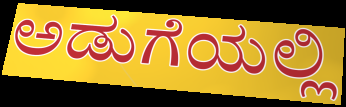
ಅಡುಗೆಯಲ್ಲಿ